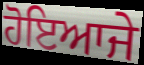
ਹੋਇਆਜੇ